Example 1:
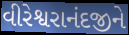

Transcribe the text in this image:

વીરેશ્વરાનંદજીને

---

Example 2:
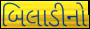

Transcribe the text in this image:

બિલાડીનો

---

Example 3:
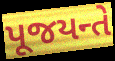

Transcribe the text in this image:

પૂજયન્તે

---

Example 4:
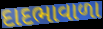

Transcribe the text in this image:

દાદભાવાળા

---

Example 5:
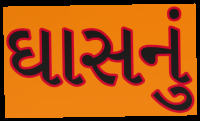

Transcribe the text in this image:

ઘાસનું